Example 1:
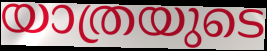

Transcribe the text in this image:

യാത്രയുടെ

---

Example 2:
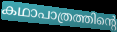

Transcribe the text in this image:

കഥാപാത്രത്തിന്റെ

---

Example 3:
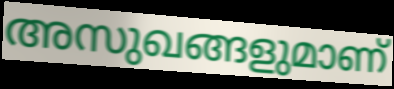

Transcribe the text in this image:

അസുഖങ്ങളുമാണ്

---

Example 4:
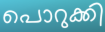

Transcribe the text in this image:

പൊറുക്കി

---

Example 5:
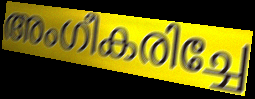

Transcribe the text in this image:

അംഗീകരിച്ചേ